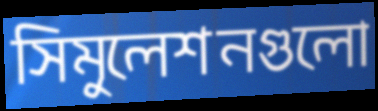
সিমুলেশনগুলো